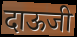
दाऊजी